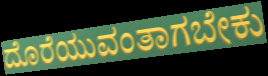
ದೊರೆಯುವಂತಾಗಬೇಕು